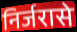
निर्जरासे